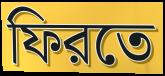
ফিরতে